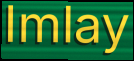
Imlay